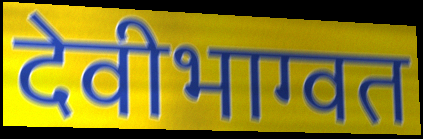
देवीभाग्वत